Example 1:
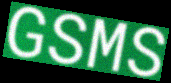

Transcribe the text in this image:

GSMS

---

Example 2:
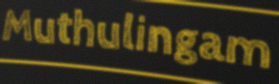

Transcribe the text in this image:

Muthulingam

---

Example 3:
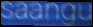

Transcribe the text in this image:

saangu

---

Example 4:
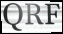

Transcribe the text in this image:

QRF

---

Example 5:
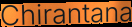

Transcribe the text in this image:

Chirantana